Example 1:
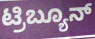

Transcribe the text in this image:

ಟ್ರಿಬ್ಯೂನ್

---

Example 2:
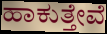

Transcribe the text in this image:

ಹಾಕುತ್ತೇವೆ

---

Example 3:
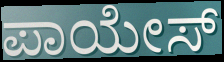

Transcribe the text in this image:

ಪಾಯೇಸ್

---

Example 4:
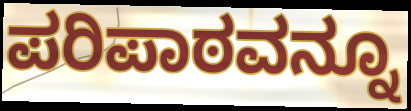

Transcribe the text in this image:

ಪರಿಪಾಠವನ್ನೂ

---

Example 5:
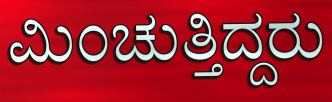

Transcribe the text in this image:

ಮಿಂಚುತ್ತಿದ್ದರು